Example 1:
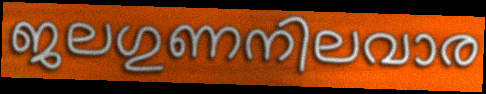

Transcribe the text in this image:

ജലഗുണനിലവാര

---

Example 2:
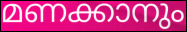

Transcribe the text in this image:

മണക്കാനും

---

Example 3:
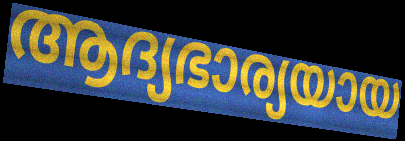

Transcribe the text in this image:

ആദ്യഭാര്യയായ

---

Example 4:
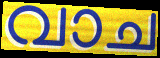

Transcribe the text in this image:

വാച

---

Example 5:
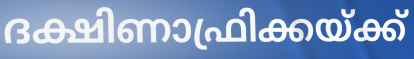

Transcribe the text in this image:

ദക്ഷിണാഫ്രിക്കയ്ക്ക്